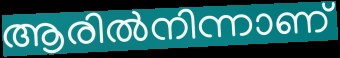
ആരിൽനിന്നാണ്